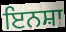
ਇਨਸ਼ਾ